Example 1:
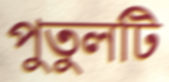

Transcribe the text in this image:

পুতুলটি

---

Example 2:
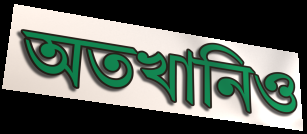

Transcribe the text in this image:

অতখানিও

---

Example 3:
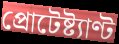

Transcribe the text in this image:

প্রোটেষ্ট্যাণ্ট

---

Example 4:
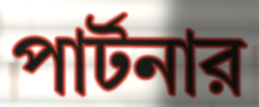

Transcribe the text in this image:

পার্টনার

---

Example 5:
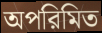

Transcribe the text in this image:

অপরিমিত